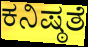
ಕನಿಷ್ಠತೆ